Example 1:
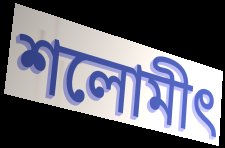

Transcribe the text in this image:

শলোমীৎ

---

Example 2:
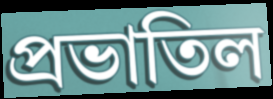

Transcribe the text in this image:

প্রভাতিল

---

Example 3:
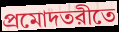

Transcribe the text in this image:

প্রমোদতরীতে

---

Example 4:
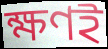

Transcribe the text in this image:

ক্ষণই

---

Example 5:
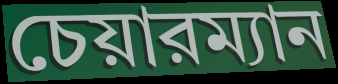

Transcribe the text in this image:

চেয়ারম্য়ান